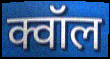
क्वॉल